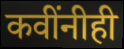
कवींनीही